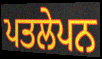
ਪਤਲੇਪਨ